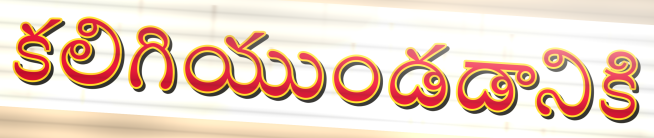
కలిగియుండడానికి